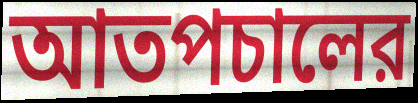
আতপচালের